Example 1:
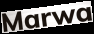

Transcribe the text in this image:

Marwa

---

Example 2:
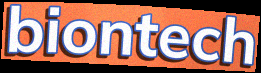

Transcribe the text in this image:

biontech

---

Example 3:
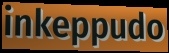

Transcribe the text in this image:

inkeppudo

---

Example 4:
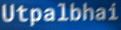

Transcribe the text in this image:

Utpalbhai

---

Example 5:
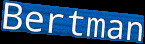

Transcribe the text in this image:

Bertman